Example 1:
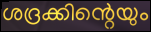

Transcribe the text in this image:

ശദ്രക്കിന്റെയും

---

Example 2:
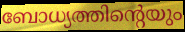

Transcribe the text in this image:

ബോധ്യത്തിന്റെയും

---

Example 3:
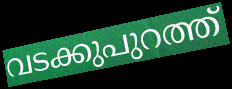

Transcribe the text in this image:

വടക്കുപുറത്ത്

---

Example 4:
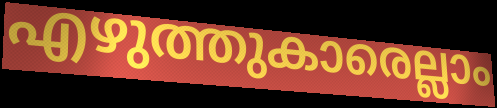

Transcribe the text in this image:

എഴുത്തുകാരെല്ലാം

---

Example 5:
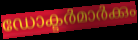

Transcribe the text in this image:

ഡോക്ടർമാർക്കും